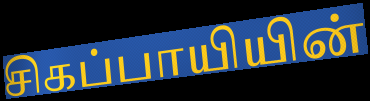
சிகப்பாயியின்